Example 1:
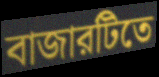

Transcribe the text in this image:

বাজারটিতে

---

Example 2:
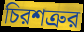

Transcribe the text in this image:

চিরশত্রুর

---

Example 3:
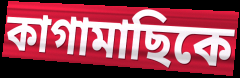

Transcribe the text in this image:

কাগামাছিকে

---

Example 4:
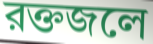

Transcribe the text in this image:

রক্তজলে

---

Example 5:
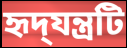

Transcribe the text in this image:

হৃদ্‌যন্ত্রটি